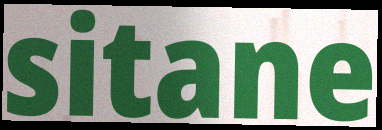
sitane